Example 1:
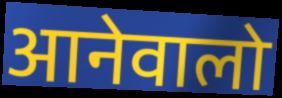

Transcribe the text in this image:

आनेवालो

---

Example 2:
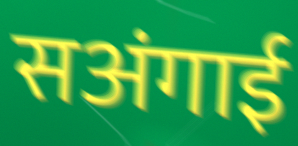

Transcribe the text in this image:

सअंगाई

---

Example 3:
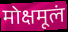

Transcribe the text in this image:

मोक्षमूलं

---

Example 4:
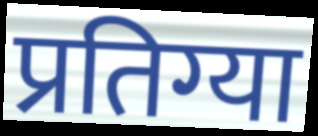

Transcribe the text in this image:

प्रतिग्या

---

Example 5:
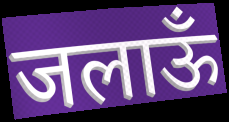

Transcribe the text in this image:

जलाऊँ